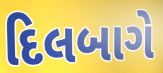
દિલબાગે